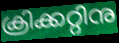
ക്രിക്കറ്റിനു